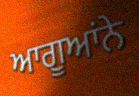
ਆਗੂਆਂਨੇ